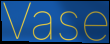
Vase